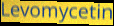
Levomycetin